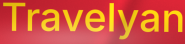
Travelyan